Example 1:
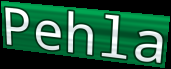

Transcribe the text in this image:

Pehla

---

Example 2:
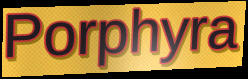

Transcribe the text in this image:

Porphyra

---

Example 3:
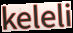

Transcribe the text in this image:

keleli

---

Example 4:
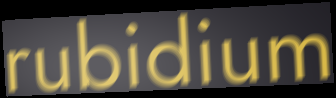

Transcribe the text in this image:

rubidium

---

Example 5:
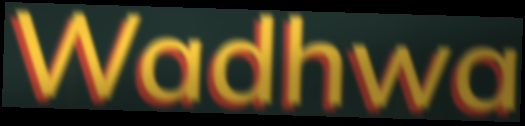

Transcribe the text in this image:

Wadhwa